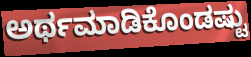
ಅರ್ಥಮಾಡಿಕೊಂಡಷ್ಟು